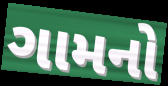
ગામનો